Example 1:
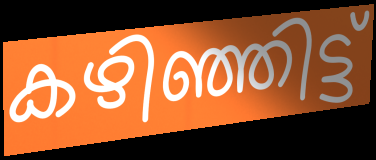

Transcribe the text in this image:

കഴിഞ്ഞിട്ട്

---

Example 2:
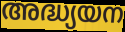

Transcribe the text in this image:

അദ്ധ്യയന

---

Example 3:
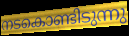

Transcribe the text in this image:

നടകൊണ്ടിടുന്നു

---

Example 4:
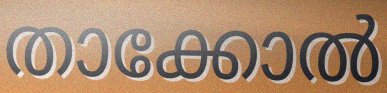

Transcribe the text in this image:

താക്കോൽ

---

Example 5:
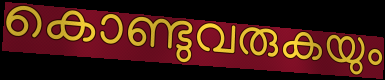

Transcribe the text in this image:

കൊണ്ടുവരുകയും